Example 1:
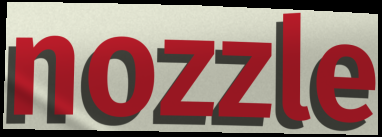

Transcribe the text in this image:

nozzle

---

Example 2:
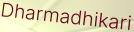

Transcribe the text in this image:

Dharmadhikari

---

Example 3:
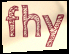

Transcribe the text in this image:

fhy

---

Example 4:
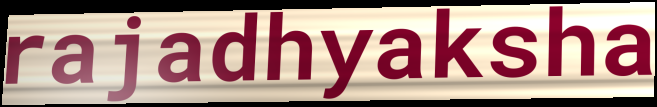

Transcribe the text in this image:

rajadhyaksha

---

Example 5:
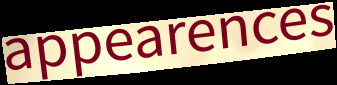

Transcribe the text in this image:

appearences